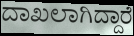
ದಾಖಲಾಗಿದ್ದಾರೆ